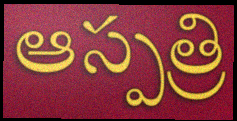
ఆస్పత్రి